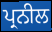
ਪ੍ਰਨੀਲ